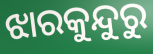
ଝାରକୁନ୍ଦୁରୁ